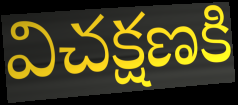
విచక్షణకి